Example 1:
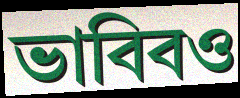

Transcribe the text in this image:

ভাবিবও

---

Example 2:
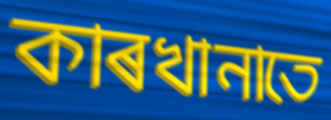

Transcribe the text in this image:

কাৰখানাতে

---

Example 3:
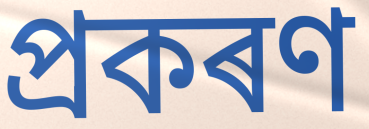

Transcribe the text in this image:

প্ৰকৰণ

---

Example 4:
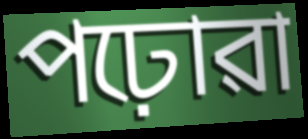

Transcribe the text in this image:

পঢ়োৱা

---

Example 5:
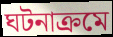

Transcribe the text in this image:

ঘটনাক্ৰমে